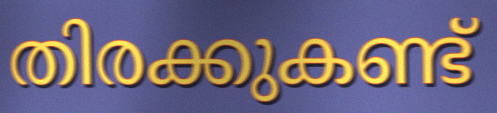
തിരക്കുകണ്ട്